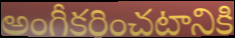
అంగీకరించటానికి